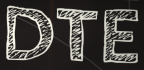
DTE